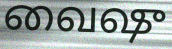
வைஷு